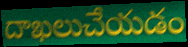
దాఖలుచేయడం